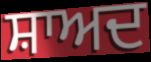
ਸ਼ਾਅਦ